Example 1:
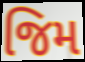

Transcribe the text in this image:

જિમ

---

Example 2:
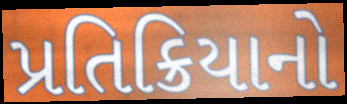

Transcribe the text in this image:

પ્રતિક્રિયાનો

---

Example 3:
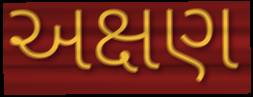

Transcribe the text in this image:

અક્ષણ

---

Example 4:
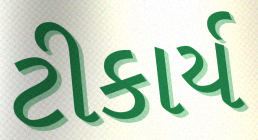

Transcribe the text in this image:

ટીકાર્ય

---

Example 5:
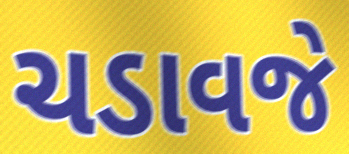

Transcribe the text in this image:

ચડાવજે